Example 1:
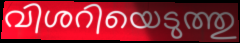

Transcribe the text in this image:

വിശറിയെടുത്തു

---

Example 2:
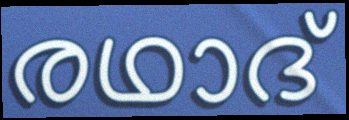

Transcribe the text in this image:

രഥാദ്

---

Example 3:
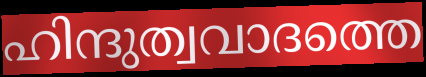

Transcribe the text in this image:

ഹിന്ദുത്വവാദത്തെ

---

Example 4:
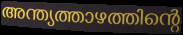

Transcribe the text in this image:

അന്ത്യത്താഴത്തിന്റെ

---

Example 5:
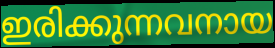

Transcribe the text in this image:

ഇരിക്കുന്നവനായ